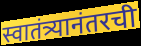
स्वातंत्र्यानंतरची